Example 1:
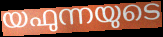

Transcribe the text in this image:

യഫുന്നയുടെ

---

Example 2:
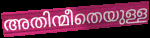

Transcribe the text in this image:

അതിന്മീതെയുള്ള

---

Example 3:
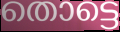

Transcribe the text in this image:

തൊട്ടെ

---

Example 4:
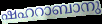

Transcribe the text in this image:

ഷഹറാബാനു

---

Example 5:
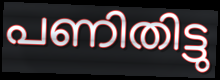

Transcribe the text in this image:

പണിതിട്ടു